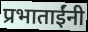
प्रभाताईंनी